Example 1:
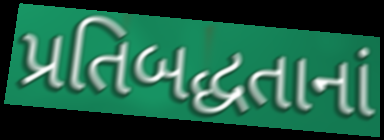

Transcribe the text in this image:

પ્રતિબદ્ધતાનાં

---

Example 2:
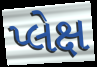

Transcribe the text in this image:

પ્લેક્ષ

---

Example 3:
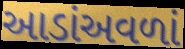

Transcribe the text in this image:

આડાંઅવળાં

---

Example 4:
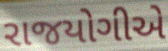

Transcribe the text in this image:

રાજયોગીએ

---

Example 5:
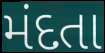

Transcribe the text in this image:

મંદતા